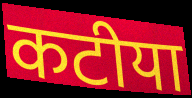
कटीया